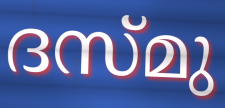
ദസ്മു